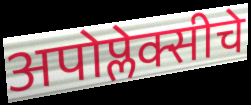
अपोप्लेक्सीचे